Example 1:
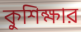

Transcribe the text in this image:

কুশিক্ষার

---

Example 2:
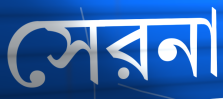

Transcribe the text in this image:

সেরনা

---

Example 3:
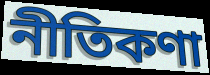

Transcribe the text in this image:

নীতিকণা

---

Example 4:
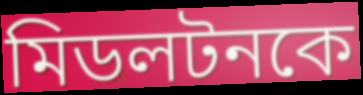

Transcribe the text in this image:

মিডলটনকে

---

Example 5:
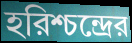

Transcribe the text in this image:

হরিশ্চন্দ্রের